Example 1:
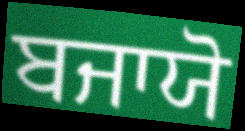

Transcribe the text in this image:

ਬਜਾਯੋ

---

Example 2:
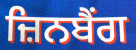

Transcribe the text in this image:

ਜ਼ਿਨਬੈਂਗ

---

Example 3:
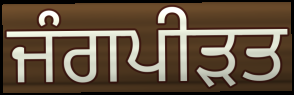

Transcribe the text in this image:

ਜੰਗਪੀੜਤ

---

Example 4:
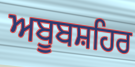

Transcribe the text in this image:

ਅਬੂਬਸ਼ਹਿਰ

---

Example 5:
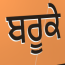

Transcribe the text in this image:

ਬਰੂਕੇ